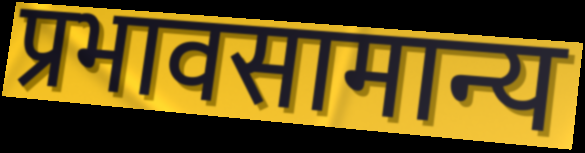
प्रभावसामान्य